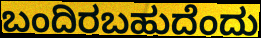
ಬಂದಿರಬಹುದೆಂದು